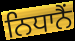
ਨਿਧਾਨੈਂ